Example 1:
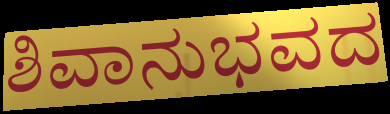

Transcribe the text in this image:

ಶಿವಾನುಭವದ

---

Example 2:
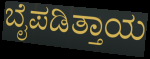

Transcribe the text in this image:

ಬೈಪಡಿತ್ತಾಯ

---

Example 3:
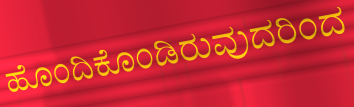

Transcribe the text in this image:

ಹೊಂದಿಕೊಂಡಿರುವುದರಿಂದ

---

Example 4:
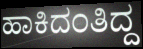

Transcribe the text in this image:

ಹಾಕಿದಂತಿದ್ದ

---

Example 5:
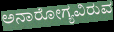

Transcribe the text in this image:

ಅನಾರೋಗ್ಯವಿರುವ